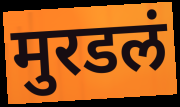
मुरडलं